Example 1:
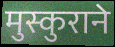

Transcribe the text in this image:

मुस्कुराने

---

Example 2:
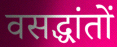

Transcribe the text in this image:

वसद्धांतों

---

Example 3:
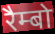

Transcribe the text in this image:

रैम्बो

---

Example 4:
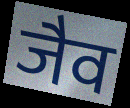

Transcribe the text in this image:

जैव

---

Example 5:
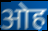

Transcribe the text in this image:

ओह